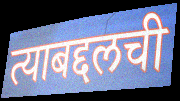
त्याबद्दलची